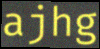
ajhg